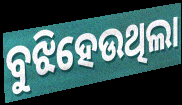
ବୁଝିହେଉଥିଲା